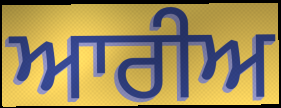
ਆਰੀਅ